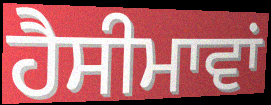
ਹੈਸੀਮਾਵਾਂ